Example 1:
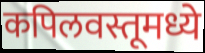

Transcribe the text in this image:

कपिलवस्तूमध्ये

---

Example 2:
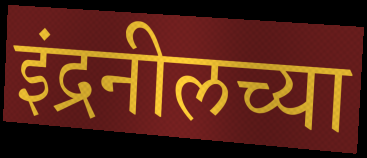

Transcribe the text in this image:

इंद्रनीलच्या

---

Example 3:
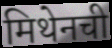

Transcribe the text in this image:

मिथेनची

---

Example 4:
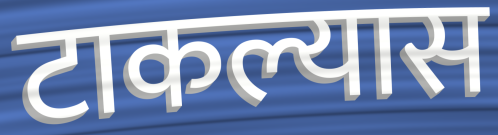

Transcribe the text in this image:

टाकल्यास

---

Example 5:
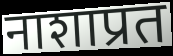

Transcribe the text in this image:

नाशाप्रत